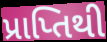
પ્રાપ્તિથી